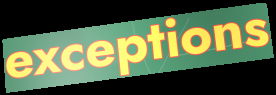
exceptions